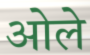
ओले